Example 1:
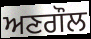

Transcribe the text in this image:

ਅਣਗੌਲ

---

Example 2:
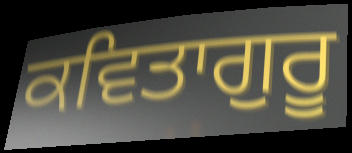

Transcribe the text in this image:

ਕਵਿਤਾਗੁਰੂ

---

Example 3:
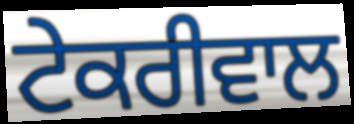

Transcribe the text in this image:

ਟੇਕਰੀਵਾਲ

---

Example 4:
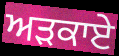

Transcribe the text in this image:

ਅੜਕਾਏ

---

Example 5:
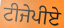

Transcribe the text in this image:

ਟੀਜੇਪੀਏ